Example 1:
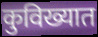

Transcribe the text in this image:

कुविख्यात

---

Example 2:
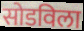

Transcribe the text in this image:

सोडविला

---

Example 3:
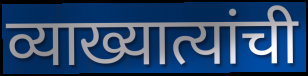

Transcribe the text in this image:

व्याख्यात्यांची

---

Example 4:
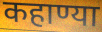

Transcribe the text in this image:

कहाण्या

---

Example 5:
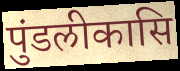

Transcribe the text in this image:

पुंडलीकासि